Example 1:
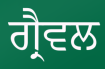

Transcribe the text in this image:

ਗ੍ਰੈਵਲ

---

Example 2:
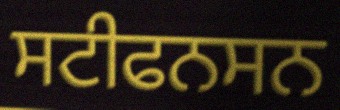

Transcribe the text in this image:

ਸਟੀਫਨਸਨ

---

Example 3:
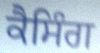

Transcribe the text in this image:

ਕੈਸਿੰਗ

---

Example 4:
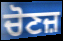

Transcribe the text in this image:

ਚੋਣਜ਼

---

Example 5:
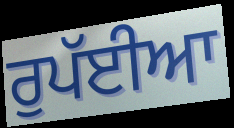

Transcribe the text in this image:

ਰੁਪੱਈਆ